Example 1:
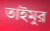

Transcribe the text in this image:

তাইমুর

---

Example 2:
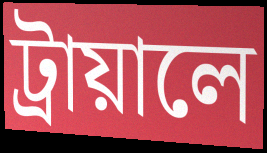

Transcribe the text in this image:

ট্রায়ালে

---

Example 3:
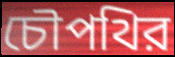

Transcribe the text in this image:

চৌপথির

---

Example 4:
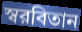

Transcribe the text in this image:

স্বরবিতান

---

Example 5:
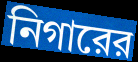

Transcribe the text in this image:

নিগারের